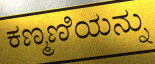
ಕಣ್ಮಣಿಯನ್ನು